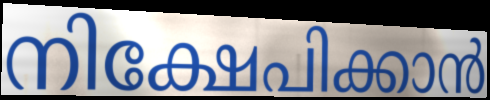
നിക്ഷേപിക്കാൻ